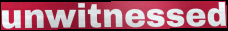
unwitnessed